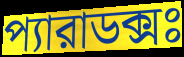
প্যারাডক্সঃ